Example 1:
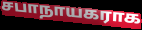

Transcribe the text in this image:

சபாநாயகராக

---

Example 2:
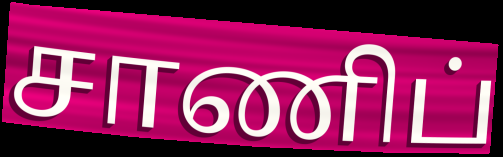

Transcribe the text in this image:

சாணிப்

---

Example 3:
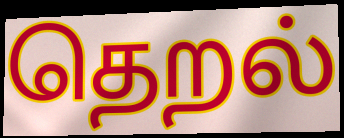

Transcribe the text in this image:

தெறல்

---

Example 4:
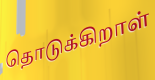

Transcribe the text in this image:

தொடுக்கிறாள்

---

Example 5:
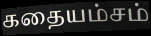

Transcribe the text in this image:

கதையம்சம்